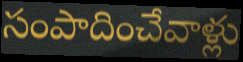
సంపాదించేవాళ్లు